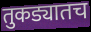
तुकड्यातच